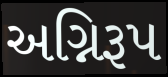
અગ્નિરૂપ